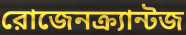
রোজেনক্র্যান্টজ